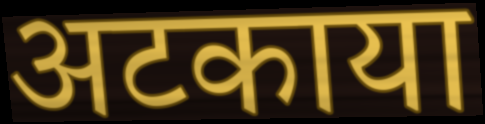
अटकाया